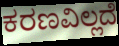
ಕರಣವಿಲ್ಲದೆ